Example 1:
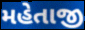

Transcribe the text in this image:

મહેતાજી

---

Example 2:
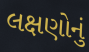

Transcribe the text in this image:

લક્ષણોનું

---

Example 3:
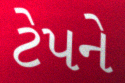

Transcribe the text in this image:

ટેપને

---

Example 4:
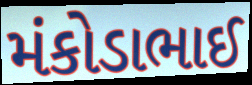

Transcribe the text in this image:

મંકોડાભાઈ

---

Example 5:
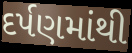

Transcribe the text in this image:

દર્પણમાંથી